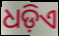
ଧଡ଼ିଏ